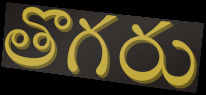
తొగరు